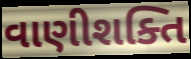
વાણીશક્તિ